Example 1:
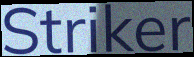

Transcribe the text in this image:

Striker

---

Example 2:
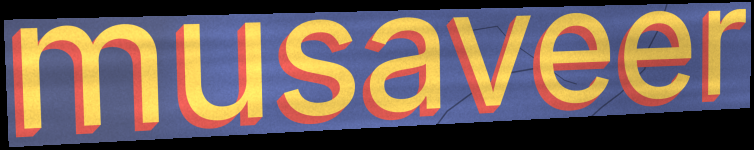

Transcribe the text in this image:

musaveer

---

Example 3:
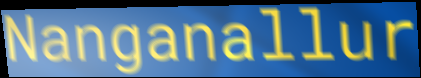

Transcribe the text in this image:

Nanganallur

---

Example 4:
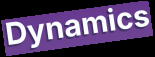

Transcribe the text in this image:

Dynamics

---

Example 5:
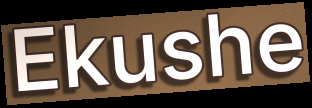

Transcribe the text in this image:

Ekushe